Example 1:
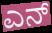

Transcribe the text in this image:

ಎನ್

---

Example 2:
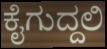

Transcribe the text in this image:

ಕೈಗುದ್ದಲಿ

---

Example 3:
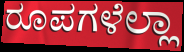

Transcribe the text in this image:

ರೂಪಗಳೆಲ್ಲಾ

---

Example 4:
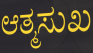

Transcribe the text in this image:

ಆತ್ಮಸುಖ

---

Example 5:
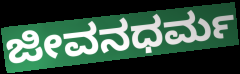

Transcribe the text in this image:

ಜೀವನಧರ್ಮ